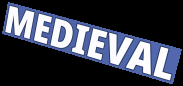
MEDIEVAL